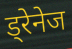
ड्रेनेज